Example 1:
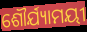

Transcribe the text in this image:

ଶୌର୍ଯ୍ୟାମୟୀ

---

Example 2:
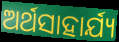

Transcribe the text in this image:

ଅର୍ଥସାହାର୍ଯ୍ୟ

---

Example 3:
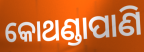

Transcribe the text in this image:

କୋଥଣ୍ଡାପାଣି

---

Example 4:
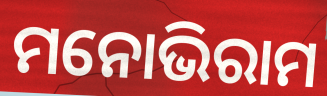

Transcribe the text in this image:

ମନୋଭିରାମ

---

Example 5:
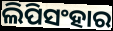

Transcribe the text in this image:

ଲିପିସଂହାର